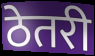
ठेतरी